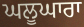
ਘਲੂਘਾਰਾ